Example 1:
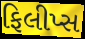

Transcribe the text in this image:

ફિલીપ્સ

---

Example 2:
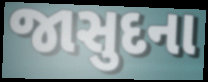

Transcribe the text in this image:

જાસુદના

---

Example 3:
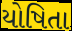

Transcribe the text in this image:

યોષિતા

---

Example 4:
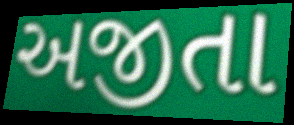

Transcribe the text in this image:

અજીતા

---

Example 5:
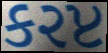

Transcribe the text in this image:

કરપ્ટ